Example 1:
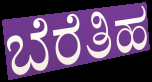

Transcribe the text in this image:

ಬೆರೆತಿಹ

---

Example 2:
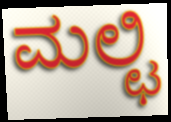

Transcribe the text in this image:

ಮಲ್ಟಿ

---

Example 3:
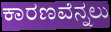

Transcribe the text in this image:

ಕಾರಣವೆನ್ನಲು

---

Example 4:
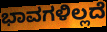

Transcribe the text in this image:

ಭಾವಗಳಿಲ್ಲದೆ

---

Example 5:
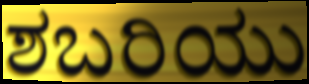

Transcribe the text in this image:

ಶಬರಿಯು